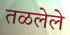
तळलेले